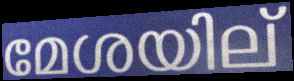
മേശയില്